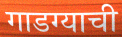
गाडग्याची